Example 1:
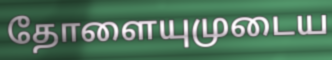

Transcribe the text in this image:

தோளையுமுடைய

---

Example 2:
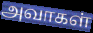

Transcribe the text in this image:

அவாகள்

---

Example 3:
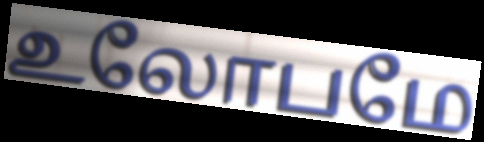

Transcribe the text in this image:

உலோபமே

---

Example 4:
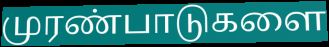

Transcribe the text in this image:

முரண்பாடுகளை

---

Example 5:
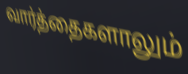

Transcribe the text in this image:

வார்த்தைகளாலும்